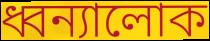
ধ্বন্যালোক